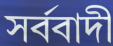
সর্ববাদী